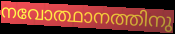
നവോത്ഥാനത്തിനു